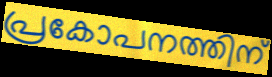
പ്രകോപനത്തിന്